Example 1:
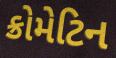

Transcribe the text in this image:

ક્રોમેટિન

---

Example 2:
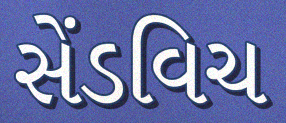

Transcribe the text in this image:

સેંડવિચ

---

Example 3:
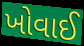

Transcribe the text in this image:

ખોવાઈ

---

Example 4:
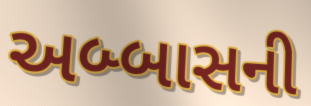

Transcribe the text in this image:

અબ્બાસની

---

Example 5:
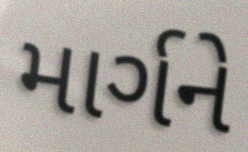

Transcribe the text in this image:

માર્ગને